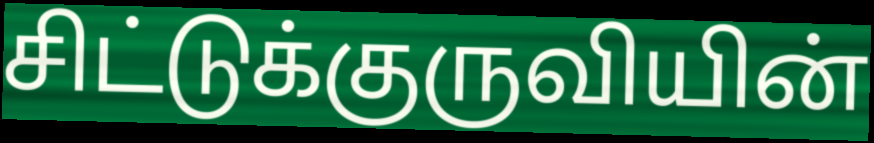
சிட்டுக்குருவியின்